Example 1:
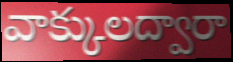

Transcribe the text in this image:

వాక్కులద్వారా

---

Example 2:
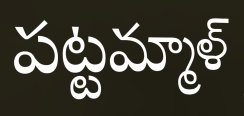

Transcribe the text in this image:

పట్టమ్మాళ్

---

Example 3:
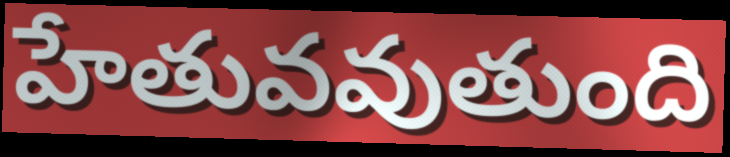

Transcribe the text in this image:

హేతువవుతుంది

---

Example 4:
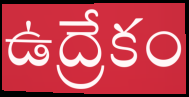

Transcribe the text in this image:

ఉద్రేకం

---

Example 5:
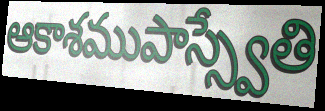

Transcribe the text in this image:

ఆకాశముపాస్స్వేతి